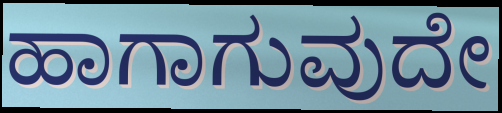
ಹಾಗಾಗುವುದೇ